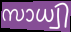
സാധ്വി